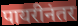
पायरीनंतर